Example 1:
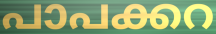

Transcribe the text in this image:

പാപക്കറ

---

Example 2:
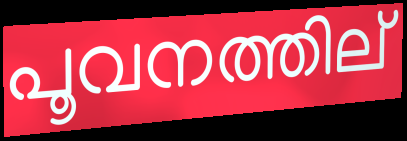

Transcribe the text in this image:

പൂവനത്തില്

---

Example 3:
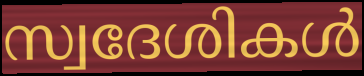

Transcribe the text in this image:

സ്വദേശികൾ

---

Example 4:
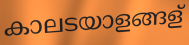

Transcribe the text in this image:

കാലടയാളങ്ങള്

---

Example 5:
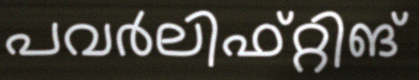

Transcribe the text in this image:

പവർലിഫ്റ്റിങ്